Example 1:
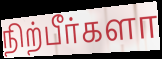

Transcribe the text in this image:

நிற்பீர்களா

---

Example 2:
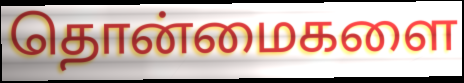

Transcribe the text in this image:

தொன்மைகளை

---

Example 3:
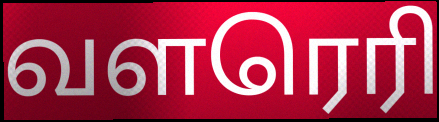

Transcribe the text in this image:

வளரெரி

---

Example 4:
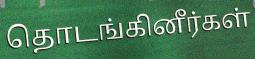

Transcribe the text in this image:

தொடங்கினீர்கள்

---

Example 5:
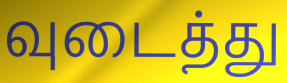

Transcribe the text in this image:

வுடைத்து